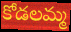
కోడలమ్మ